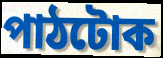
পাঠটোক